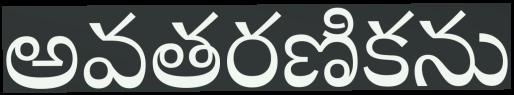
అవతరణికను